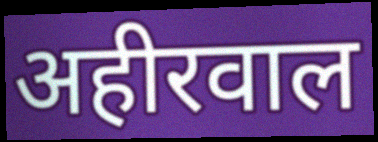
अहीरवाल